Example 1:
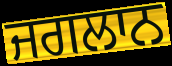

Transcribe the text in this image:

ਜਗਲਾਨ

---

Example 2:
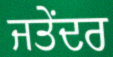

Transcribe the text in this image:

ਜਤੇਂਦਰ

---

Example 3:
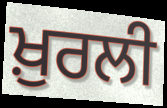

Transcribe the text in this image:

ਖ਼ੁਰਲੀ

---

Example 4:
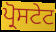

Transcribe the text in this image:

ਪ੍ਰੋਸਟੇਟ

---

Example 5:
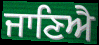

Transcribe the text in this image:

ਜਾਣਿਐ